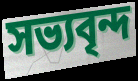
সভ্যবৃন্দ